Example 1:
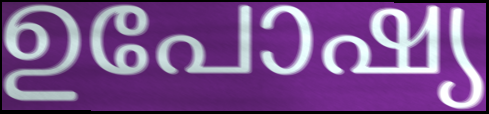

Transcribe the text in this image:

ഉപോഷ്യ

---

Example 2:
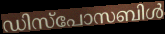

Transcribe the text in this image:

ഡിസ്പോസബിൾ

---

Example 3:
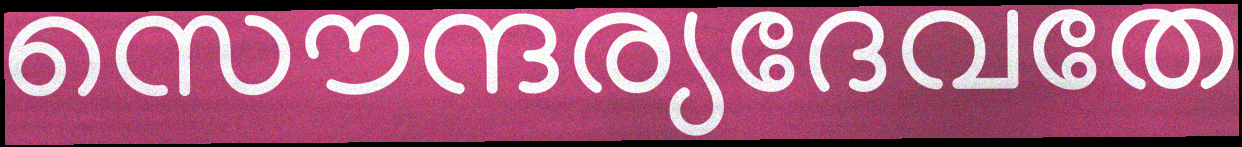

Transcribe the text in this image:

സൌന്ദര്യദേവതേ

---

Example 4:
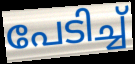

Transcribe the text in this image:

പേടിച്ച്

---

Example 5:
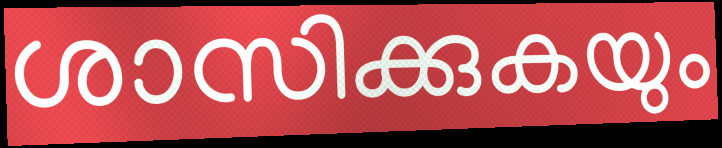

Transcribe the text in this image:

ശാസിക്കുകയും